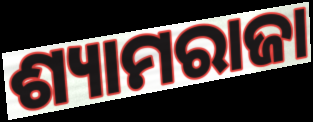
ଶ୍ୟାମରାଜା